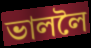
ভাললৈ